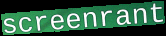
screenrant